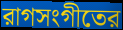
রাগসংগীতের